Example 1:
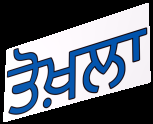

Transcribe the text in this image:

ਤੋਖ਼ਲਾ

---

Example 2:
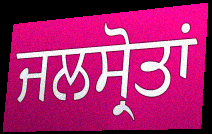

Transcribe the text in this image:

ਜਲਸ੍ਰੋਤਾਂ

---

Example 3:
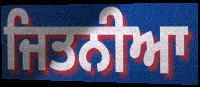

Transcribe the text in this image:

ਜਿਤਨੀਆ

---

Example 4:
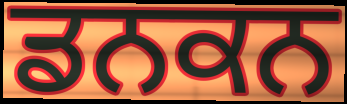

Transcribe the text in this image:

ਡਨਕਨ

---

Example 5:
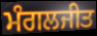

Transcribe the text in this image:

ਮੰਗਲਜੀਤ